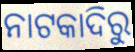
ନାଟକାଦିରୁ